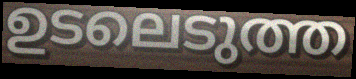
ഉടലെടുത്ത